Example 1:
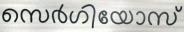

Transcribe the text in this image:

സെർഗിയോസ്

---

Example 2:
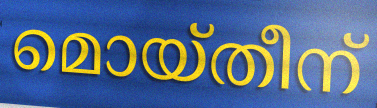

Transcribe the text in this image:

മൊയ്തീന്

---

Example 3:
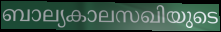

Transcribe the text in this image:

ബാല്യകാലസഖിയുടെ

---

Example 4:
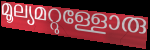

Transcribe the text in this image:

മൂല്യമറ്റുള്ളോരു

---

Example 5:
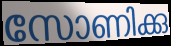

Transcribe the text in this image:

സോണിക്കു